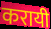
करायी